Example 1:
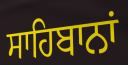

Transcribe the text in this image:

ਸਾਹਿਬਾਨਾਂ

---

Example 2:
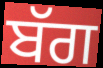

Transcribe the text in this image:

ਬੱਗ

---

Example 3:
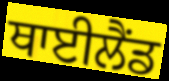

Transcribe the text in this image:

ਥਾਈਲੈਂਡ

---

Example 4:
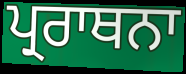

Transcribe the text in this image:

ਪ੍ਰਰਾਥਨਾ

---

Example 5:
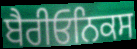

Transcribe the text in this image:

ਬੈਰੀਓਨਿਕਸ